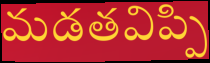
మడతవిప్పి